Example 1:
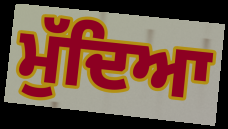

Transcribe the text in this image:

ਮੁੱਦਿਆ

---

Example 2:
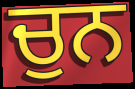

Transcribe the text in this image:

ਚੁਨ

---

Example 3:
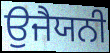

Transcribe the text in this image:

ਉਜੈਯਨੀ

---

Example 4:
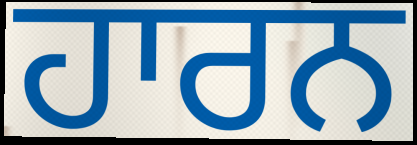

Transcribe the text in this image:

ਹਾਰਨ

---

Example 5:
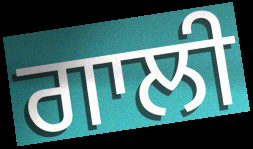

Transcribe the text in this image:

ਗਾਲੀ